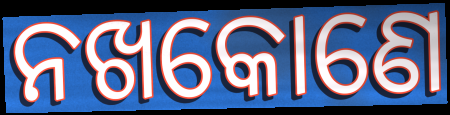
ନଖକୋଣେ